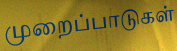
முறைப்பாடுகள்